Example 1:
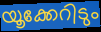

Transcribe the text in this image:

യൂക്കേറിടും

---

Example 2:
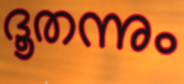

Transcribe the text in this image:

ദൂതന്നും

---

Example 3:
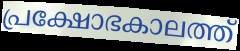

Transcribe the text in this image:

പ്രക്ഷോഭകാലത്ത്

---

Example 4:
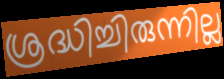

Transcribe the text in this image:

ശ്രദ്ധിച്ചിരുന്നില്ല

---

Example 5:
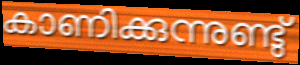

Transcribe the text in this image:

കാണിക്കുന്നുണ്ടു്